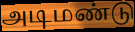
அடிமண்டு